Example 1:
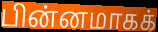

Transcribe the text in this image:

பின்னமாகக்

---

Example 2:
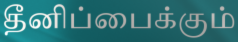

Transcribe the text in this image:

தீனிப்பைக்கும்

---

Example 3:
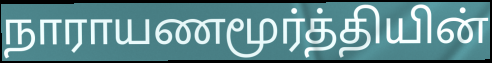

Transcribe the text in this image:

நாராயணமூர்த்தியின்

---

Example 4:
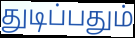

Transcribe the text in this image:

துடிப்பதும்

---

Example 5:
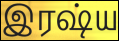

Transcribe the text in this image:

இரஷ்ய